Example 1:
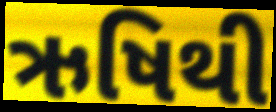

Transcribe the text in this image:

ઋષિથી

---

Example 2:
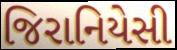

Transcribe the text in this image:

જિરાનિયેસી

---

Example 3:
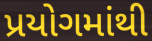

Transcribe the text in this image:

પ્રયોગમાંથી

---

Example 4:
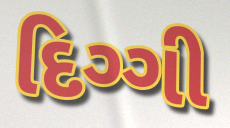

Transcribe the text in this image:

દિગ્ગી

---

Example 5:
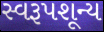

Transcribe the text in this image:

સ્વરૂપશૂન્ય